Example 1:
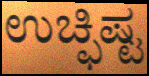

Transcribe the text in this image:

ಉಚ್ಫಿಷ್ಟ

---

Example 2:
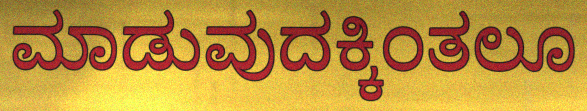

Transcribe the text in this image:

ಮಾಡುವುದಕ್ಕಿಂತಲೂ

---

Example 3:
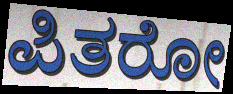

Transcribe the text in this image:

ಪಿತರೋ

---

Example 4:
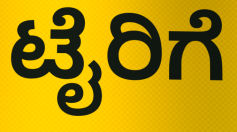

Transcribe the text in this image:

ಟೈರಿಗೆ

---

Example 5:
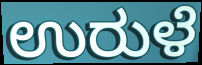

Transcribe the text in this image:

ಉರುಳೆ